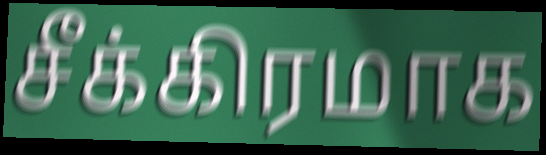
சீக்கிரமாக